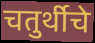
चतुर्थीचे